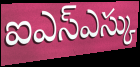
ఐఎస్ఎస్కు